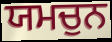
ਯਮਚੁਨ